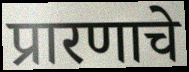
प्रारणाचे